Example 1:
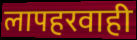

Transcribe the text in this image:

लापहरवाही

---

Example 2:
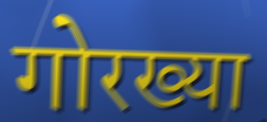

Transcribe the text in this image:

गोरख्या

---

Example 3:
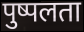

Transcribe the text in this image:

पुष्पलता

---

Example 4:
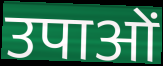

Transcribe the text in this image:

उपाओं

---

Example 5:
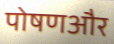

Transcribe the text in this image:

पोषणऔर